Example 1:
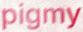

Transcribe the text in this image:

pigmy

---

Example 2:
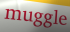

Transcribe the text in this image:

muggle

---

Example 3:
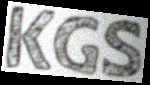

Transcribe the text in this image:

KGS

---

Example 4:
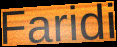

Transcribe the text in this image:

Faridi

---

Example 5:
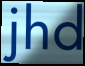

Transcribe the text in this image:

jhd